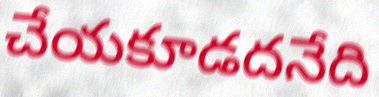
చేయకూడదనేది